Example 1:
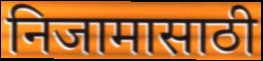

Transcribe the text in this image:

निजामासाठी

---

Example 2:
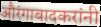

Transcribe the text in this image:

औरंगाबादकरांनी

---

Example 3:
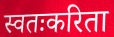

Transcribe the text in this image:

स्वतःकरिता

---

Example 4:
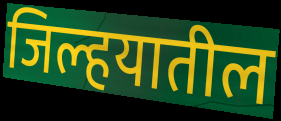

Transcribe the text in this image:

जिल्हयातील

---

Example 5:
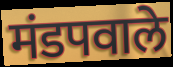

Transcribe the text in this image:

मंडपवाले